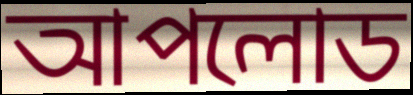
আপলোড